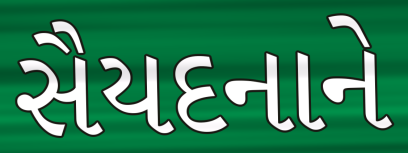
સૈયદનાને